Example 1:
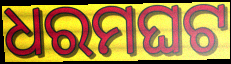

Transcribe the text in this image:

ଧରମଘଟ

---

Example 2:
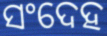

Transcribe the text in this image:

ସଂଦେହ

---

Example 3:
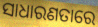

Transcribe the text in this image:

ସାଧାରଣତାରେ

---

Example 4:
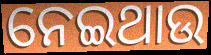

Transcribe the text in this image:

ନେଇଥାଉ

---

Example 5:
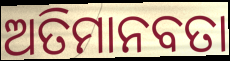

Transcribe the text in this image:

ଅତିମାନବତା